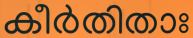
കീർതിതാഃ